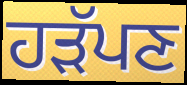
ਹੜੱਪਣ